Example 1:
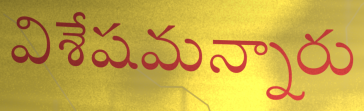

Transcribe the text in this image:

విశేషమన్నారు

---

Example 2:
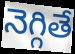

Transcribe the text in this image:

నెగ్గితే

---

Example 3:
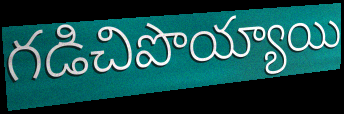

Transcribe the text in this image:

గడిచిపొయ్యాయి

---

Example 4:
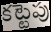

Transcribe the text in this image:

కట్టెపు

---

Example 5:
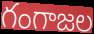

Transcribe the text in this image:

గంగాజల